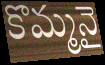
కొమ్మనై